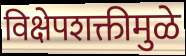
विक्षेपशक्तीमुळे